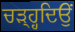
ਚੜ੍ਹ੍ਹਦਿਉਂ